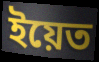
ইয়েত